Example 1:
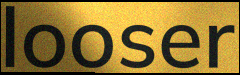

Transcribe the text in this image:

looser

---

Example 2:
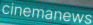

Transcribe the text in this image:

cinemanews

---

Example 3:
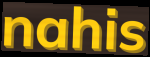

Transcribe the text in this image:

nahis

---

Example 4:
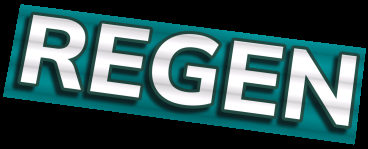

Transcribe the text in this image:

REGEN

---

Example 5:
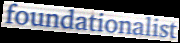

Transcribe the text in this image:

foundationalist